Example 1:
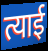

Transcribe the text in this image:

त्याई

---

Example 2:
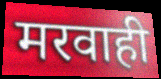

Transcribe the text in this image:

मरवाही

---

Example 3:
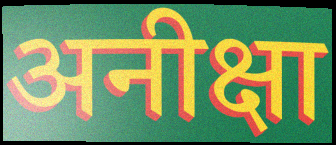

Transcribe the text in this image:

अनीक्षा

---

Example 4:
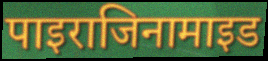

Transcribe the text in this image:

पाइराजिनामाइड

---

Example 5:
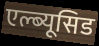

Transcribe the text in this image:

एल्ब्यूसिड